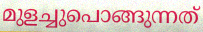
മുളച്ചുപൊങ്ങുന്നത്